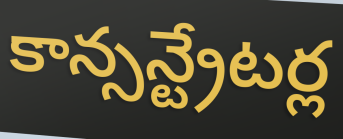
కాన్సన్ట్రేటర్ల